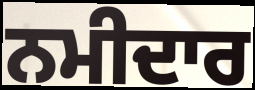
ਨਮੀਦਾਰ